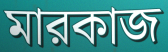
মারকাজ